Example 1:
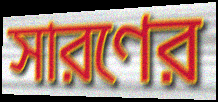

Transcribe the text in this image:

সারণের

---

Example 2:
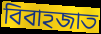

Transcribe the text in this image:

বিবাহজাত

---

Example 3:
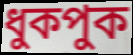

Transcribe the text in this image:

ধুকপুক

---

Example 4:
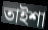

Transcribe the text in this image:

তাইশা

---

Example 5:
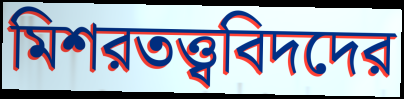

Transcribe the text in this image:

মিশরতত্ত্ববিদদের